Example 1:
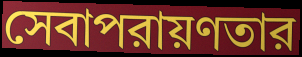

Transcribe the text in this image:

সেবাপরায়ণতার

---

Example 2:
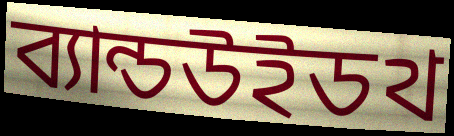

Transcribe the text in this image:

ব্যান্ডউইডথ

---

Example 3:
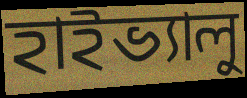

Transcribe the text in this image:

হাইভ্যালু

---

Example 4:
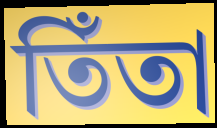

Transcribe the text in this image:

তিঁতা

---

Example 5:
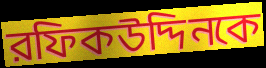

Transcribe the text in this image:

রফিকউদ্দিনকে